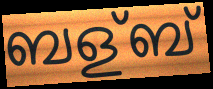
ബള്ബ്